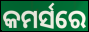
କମର୍ସରେ